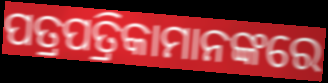
ପତ୍ରପତ୍ରିକାମାନଙ୍କରେ